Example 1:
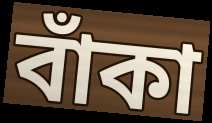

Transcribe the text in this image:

বাঁকা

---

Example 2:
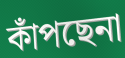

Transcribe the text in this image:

কাঁপছেনা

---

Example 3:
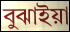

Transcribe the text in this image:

বুঝাইয়া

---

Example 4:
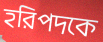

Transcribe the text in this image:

হরিপদকে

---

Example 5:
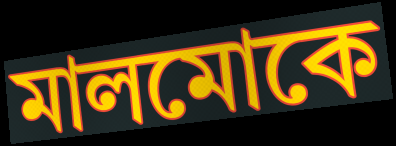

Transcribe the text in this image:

মালমোকে